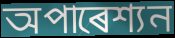
অপাৰেশ্যন